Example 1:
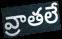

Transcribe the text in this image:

వ్రాతలే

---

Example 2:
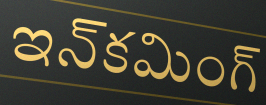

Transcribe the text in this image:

ఇన్‌కమింగ్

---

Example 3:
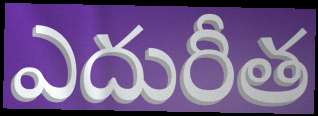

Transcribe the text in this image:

ఎదురీత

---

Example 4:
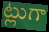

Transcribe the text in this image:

ట్లుగా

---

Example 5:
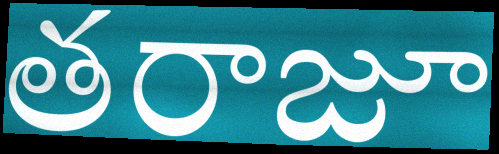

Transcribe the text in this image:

తరాజూ